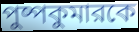
পুষ্পকুমারকে